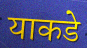
याकडे